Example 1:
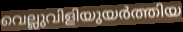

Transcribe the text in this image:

വെല്ലുവിളിയുയർത്തിയ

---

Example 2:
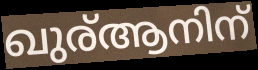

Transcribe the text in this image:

ഖുര്ആനിന്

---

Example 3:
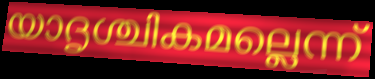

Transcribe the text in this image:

യാദൃശ്ചികമല്ലെന്ന്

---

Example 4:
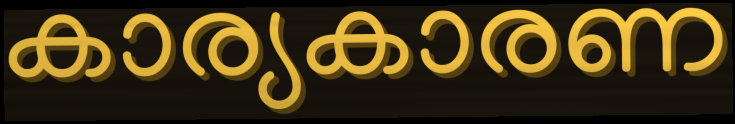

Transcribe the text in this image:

കാര്യകാരണ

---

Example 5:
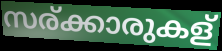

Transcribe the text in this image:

സര്ക്കാരുകള്